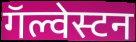
गॅल्वेस्टन